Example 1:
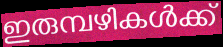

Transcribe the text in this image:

ഇരുമ്പഴികൾക്ക്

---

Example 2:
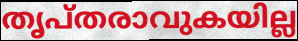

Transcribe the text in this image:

തൃപ്തരാവുകയില്ല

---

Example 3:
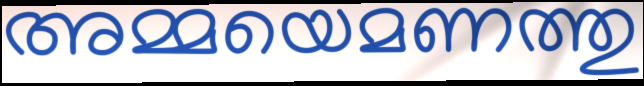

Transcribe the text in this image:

അമ്മയെമണത്തു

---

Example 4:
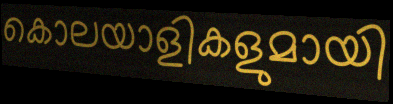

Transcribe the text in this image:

കൊലയാളികളുമായി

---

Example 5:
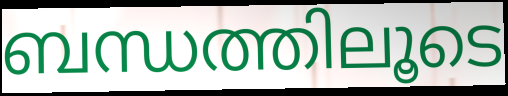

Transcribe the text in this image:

ബന്ധത്തിലൂടെ